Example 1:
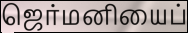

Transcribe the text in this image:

ஜெர்மனியைப்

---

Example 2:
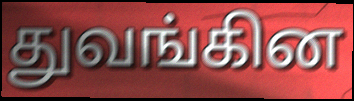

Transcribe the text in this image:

துவங்கின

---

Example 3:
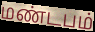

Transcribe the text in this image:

மண்டபம்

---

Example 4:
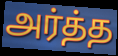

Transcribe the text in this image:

அர்த்த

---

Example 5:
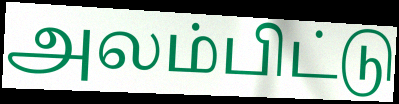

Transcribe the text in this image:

அலம்பிட்டு